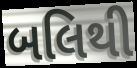
બલિથી